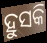
ହୁସକି